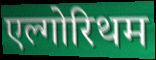
एल्गोरिथम